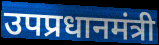
उपप्रधानमंत्री